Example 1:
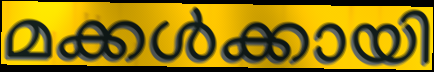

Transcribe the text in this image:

മക്കൾക്കായി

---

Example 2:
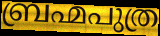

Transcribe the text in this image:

ബ്രഹ്മപുത്ര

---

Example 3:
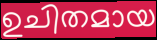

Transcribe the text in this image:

ഉചിതമായ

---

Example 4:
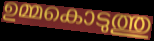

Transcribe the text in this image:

ഉമ്മകൊടുത്തു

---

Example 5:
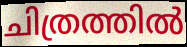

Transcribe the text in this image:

ചിത്രത്തിൽ